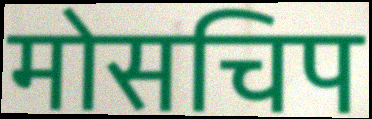
मोसचिप